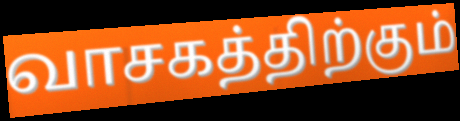
வாசகத்திற்கும்